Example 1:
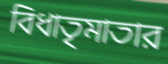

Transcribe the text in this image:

বিধাতৃমাতার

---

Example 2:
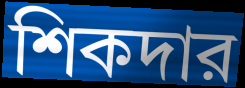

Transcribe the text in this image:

শিকদার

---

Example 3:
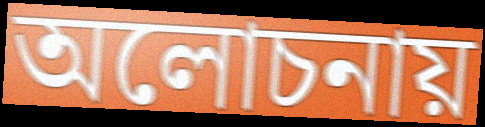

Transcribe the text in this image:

অলোচনায়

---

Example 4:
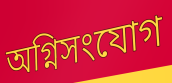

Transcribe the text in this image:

অগ্নিসংযোগ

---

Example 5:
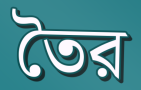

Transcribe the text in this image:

তৈর